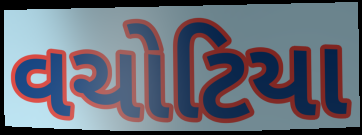
વચોટિયા